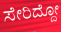
ಸೇರಿದ್ದೋ